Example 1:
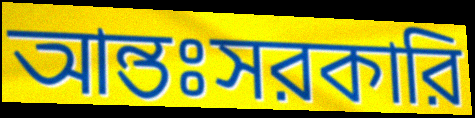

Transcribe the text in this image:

আন্তঃসরকারি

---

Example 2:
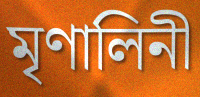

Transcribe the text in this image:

মৃণালিনী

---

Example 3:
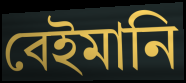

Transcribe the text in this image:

বেইমানি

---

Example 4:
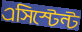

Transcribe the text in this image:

এসিস্টেন্ট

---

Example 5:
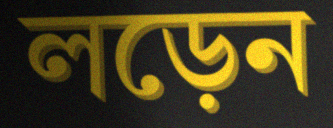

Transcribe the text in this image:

লড়েন